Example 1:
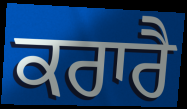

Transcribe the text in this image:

ਕਰਾਰੈ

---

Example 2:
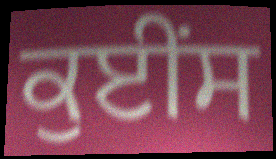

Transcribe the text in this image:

ਕੁਈਂਸ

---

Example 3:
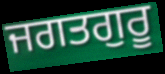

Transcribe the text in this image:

ਜਗਤਗੁਰੂ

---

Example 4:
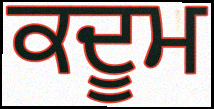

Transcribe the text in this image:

ਕਦੂਮ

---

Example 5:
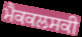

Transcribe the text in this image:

ਮੈਕਕਲਸਕੀ